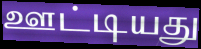
ஊட்டியது